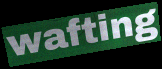
wafting